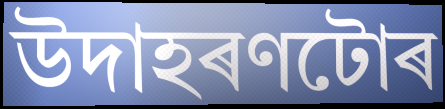
উদাহৰণটোৰ